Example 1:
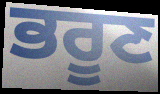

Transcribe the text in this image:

ਭਰੂਣ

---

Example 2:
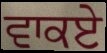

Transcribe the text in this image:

ਵਾਕਏ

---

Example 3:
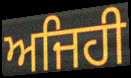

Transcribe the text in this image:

ਅਜਿਹੀ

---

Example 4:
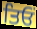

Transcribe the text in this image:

ਤਿਓਂ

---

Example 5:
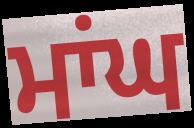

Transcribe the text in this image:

ਮਾਂਘ